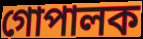
গোপালক